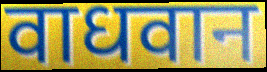
वाधवान